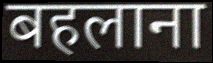
बहलाना